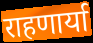
राहणार्या